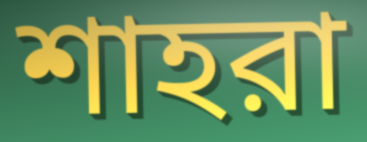
শাহরা